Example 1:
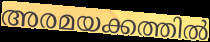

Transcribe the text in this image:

അരമയക്കത്തിൽ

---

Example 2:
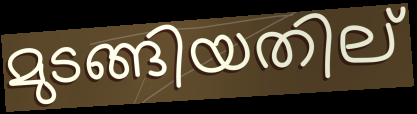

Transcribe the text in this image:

മുടങ്ങിയതില്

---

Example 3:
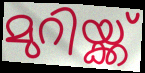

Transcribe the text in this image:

മുറിയ്ക്ക്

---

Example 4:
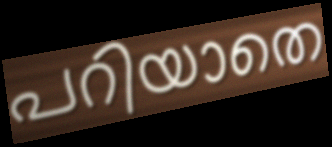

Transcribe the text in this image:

പറിയാതെ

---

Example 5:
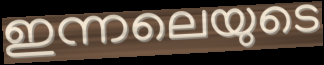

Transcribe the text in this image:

ഇന്നലെയുടെ